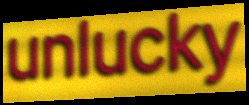
unlucky